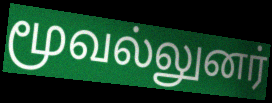
மூவல்லுனர்